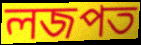
লজপত